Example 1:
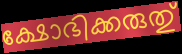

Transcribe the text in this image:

ക്ഷോഭിക്കരുതു്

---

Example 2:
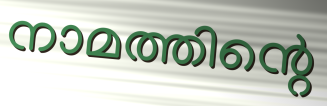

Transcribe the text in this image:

നാമത്തിന്റെ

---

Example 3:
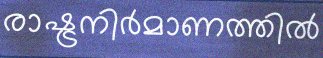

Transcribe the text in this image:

രാഷ്ട്രനിർമാണത്തിൽ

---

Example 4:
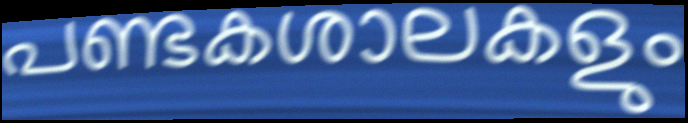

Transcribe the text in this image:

പണ്ടകശാലകളും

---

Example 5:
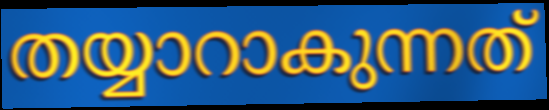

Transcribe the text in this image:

തയ്യാറാകുന്നത്